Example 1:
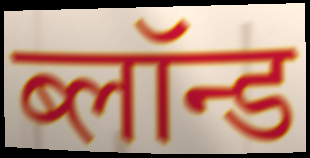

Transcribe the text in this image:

ब्लॉन्ड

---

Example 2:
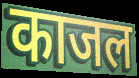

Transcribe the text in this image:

काजल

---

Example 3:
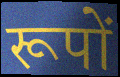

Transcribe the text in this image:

रूपों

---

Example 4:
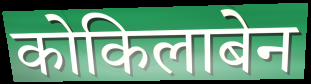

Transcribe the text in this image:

कोकिलाबेन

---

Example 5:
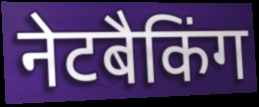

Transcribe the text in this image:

नेटबैकिंग